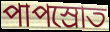
পাপস্রোত